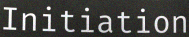
Initiation